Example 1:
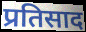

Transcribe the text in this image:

प्रतिसाद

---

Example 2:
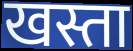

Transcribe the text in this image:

खस्ता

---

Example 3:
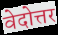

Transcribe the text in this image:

वेदोत्तर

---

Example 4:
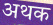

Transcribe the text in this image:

अथक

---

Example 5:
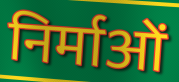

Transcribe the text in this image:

निर्माओं